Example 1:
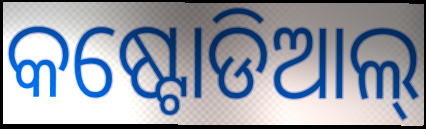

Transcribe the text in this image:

କଷ୍ଟୋଡିଆଲ୍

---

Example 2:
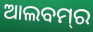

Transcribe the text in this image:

ଆଲବମ୍‌ର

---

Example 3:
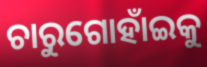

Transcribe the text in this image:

ଚାରୁଗୋହାଁଇକୁ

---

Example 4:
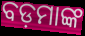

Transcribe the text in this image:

ବଡ଼ମାଙ୍କ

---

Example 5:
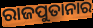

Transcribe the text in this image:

ରାଜପୁତାନାର